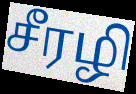
சீரழி